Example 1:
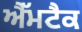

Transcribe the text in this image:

ਐੱਮਟੈਕ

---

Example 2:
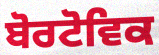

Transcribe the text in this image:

ਬੋਰਟੋਵਿਕ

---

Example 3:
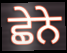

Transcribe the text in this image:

ਛੇਨੇ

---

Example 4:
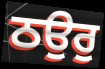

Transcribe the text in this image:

ਠਉਰੁ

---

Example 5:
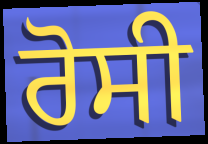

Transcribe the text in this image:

ਰੋਸੀ